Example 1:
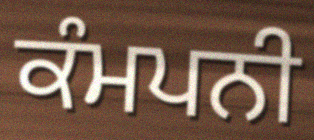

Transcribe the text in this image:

ਕੰਮਪਨੀ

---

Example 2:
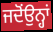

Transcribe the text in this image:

ਜਦੋਂਉਨ੍ਹਾਂ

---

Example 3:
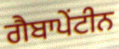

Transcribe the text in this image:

ਗੈਬਾਪੇਂਟੀਨ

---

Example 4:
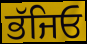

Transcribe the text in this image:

ਭੱਜਿਓ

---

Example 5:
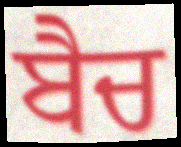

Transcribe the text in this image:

ਬੈਚ